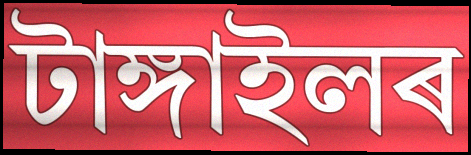
টাঙ্গাইলৰ